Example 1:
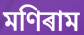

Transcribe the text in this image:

মণিৰাম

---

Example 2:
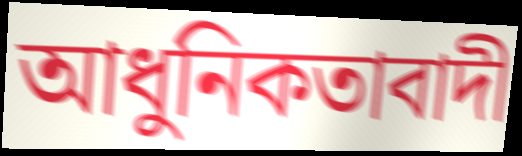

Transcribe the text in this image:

আধুনিকতাবাদী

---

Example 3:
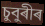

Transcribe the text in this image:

চুবুৰীৰ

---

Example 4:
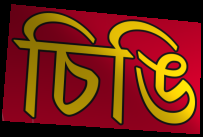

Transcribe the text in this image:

চিঙি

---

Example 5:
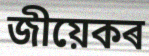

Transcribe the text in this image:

জীয়েকৰ